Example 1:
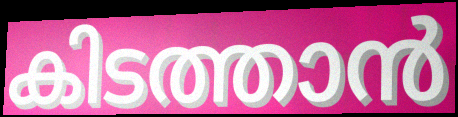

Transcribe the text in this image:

കിടത്താൻ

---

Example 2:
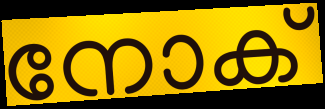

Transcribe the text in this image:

നോക്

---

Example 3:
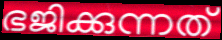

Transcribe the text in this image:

ഭജിക്കുന്നത്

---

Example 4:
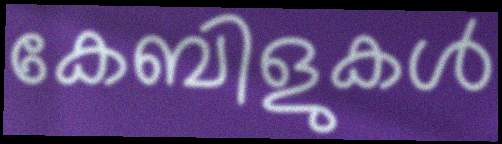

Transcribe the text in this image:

കേബിളുകൾ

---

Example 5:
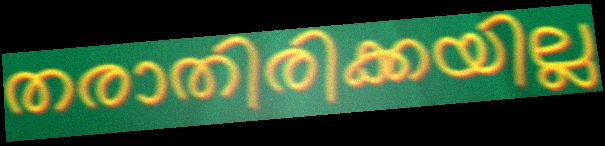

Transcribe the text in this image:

തരാതിരിക്കയില്ല